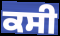
ਕਸੀ